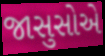
જાસુસોએ